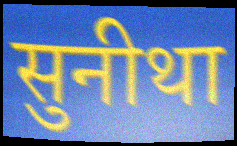
सुनीथा